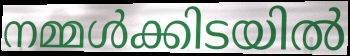
നമ്മൾക്കിടയിൽ